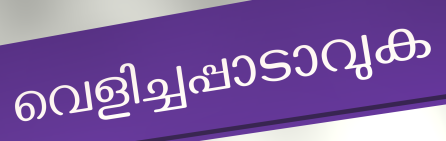
വെളിച്ചപ്പാടാവുക